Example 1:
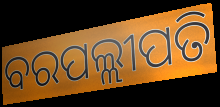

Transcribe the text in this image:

ବରପଲ୍ଲୀପତି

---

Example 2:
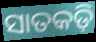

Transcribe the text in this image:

ସାତକଡ଼ି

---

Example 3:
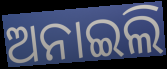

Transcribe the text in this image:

ଅନାଇଲି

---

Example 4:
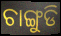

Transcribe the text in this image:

ଚାଙ୍ଗୁଡି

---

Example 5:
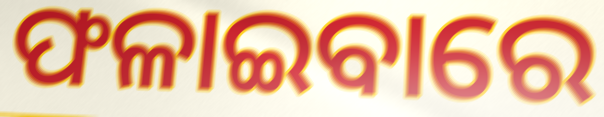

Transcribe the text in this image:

ଫଳାଇବାରେ